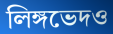
লিঙ্গভেদও